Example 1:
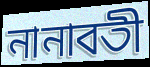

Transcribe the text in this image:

নানাবতী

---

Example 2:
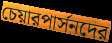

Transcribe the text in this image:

চেয়ারপার্সনদের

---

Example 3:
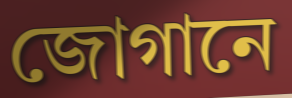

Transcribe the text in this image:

জোগানে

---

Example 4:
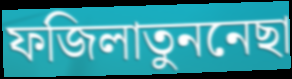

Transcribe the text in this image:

ফজিলাতুননেছা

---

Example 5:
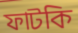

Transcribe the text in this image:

ফাটকি